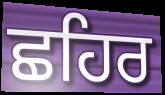
ਛਹਿਰ